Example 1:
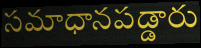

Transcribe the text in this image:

సమాధానపడ్డారు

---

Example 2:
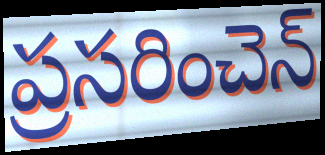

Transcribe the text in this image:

ప్రసరించెన్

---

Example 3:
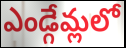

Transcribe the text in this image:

ఎండ్గేమ్లలో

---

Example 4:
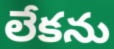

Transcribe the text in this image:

లేకను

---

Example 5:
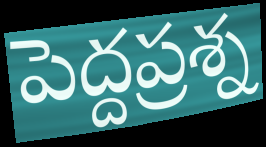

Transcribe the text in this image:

పెద్దప్రశ్న